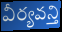
వీర్యవన్తి